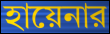
হায়েনার